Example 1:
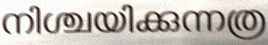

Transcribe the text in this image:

നിശ്ചയിക്കുന്നത്ര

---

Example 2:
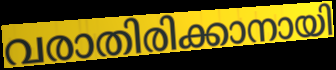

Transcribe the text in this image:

വരാതിരിക്കാനായി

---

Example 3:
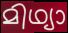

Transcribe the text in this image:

മിഥ്യാ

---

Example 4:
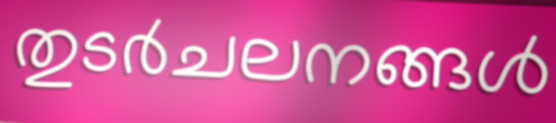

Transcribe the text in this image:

തുടർചലനങ്ങൾ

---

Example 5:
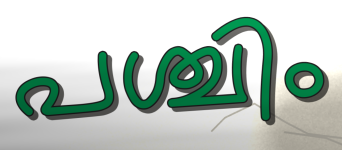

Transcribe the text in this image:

പശ്ചിം